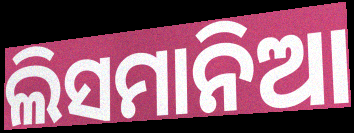
ଲିସମାନିଆ